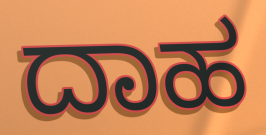
ದಾಹ